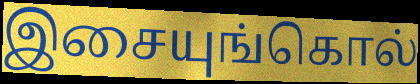
இசையுங்கொல்